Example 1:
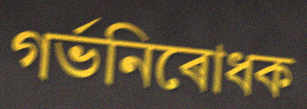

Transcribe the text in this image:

গৰ্ভনিৰোধক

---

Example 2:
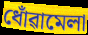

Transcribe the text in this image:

ধোঁৱামেলা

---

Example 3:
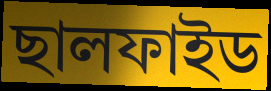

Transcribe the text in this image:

ছালফাইড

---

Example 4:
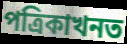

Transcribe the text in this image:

পত্ৰিকাখনত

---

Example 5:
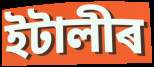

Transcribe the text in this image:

ইটালীৰ